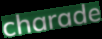
charade